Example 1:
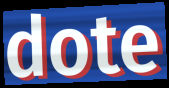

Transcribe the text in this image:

dote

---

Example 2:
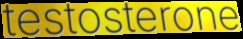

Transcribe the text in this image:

testosterone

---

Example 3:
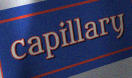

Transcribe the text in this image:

capillary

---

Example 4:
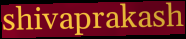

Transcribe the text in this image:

shivaprakash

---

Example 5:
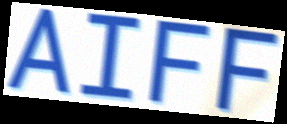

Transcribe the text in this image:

AIFF